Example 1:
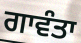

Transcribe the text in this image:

ਗਾਵੰਤਾ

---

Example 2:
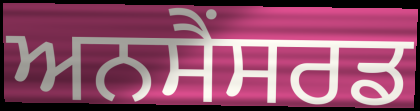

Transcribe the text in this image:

ਅਨਸੈਂਸਰਡ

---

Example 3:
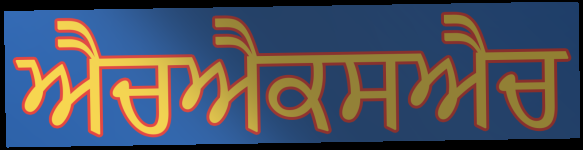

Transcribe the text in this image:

ਐਚਐਕਸਐਚ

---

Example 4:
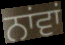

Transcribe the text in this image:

ਨਾਂਵਾਂ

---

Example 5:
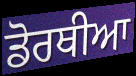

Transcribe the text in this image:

ਡੋਰਥੀਆ